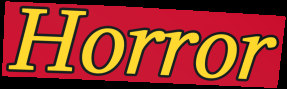
Horror